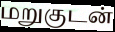
மறுகுடன்